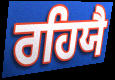
ਰਹਿਯੈ